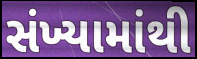
સંખ્યામાંથી